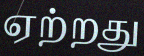
ஏற்றது